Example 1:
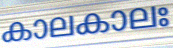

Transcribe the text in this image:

കാലകാലഃ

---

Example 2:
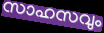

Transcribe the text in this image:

സാഹസവും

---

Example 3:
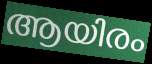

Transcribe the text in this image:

ആയിരം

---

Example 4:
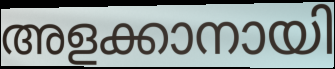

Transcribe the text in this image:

അളക്കാനായി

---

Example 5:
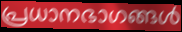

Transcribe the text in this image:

പ്രധാനഭാഗങ്ങൾ